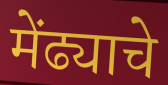
मेंढ्याचे